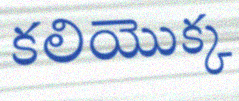
కలియొక్క